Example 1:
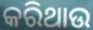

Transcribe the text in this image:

କରିଥାଉ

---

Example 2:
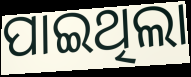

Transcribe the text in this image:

ପାଇଥିଲା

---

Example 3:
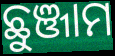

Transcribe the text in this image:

ଛୁଞ୍ଜାମ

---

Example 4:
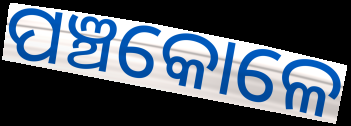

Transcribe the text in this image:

ପଞ୍ଚକୋଳେ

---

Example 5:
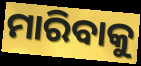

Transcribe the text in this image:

ମାରିବାକୁ